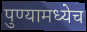
पुण्यामध्येच